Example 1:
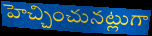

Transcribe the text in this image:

హెచ్చించునట్లుగా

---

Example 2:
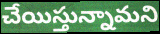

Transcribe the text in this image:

చేయిస్తున్నామని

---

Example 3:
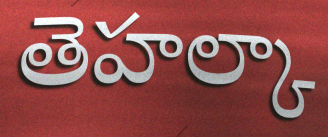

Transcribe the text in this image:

తెహల్కా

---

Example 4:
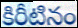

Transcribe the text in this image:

కిరీటినం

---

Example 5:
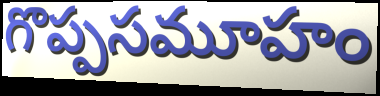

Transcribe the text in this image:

గొప్పసమూహం